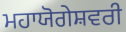
ਮਹਾਯੋਗੇਸ਼ਵਰੀ